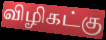
விழிகட்கு